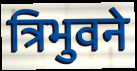
त्रिभुवने